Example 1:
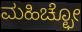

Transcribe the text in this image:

ಮಹಿಚ್ಛೋ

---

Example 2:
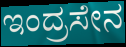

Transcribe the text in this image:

ಇಂದ್ರಸೇನ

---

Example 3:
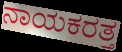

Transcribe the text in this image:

ನಾಯಕರತ್ತ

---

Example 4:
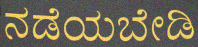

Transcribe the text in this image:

ನಡೆಯಬೇಡಿ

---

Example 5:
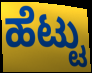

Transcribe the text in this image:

ಹೆಟ್ಟು